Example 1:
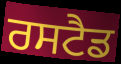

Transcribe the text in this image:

ਰਸਟੈਡ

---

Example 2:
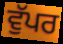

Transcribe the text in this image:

ਵੁੱਪਰ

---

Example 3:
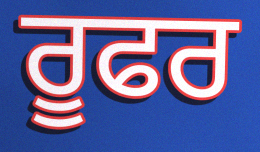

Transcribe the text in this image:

ਰੂਫਰ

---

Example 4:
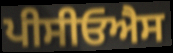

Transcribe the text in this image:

ਪੀਸੀਓਐਸ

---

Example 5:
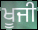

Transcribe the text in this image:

ਖੂਜੀ